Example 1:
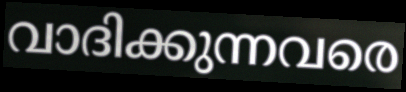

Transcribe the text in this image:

വാദിക്കുന്നവരെ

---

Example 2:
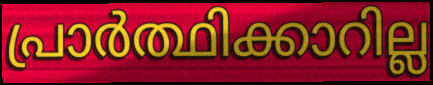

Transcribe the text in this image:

പ്രാർത്ഥിക്കാറില്ല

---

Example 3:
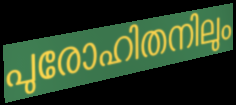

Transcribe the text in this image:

പുരോഹിതനിലും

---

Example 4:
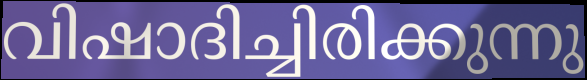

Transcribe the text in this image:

വിഷാദിച്ചിരിക്കുന്നു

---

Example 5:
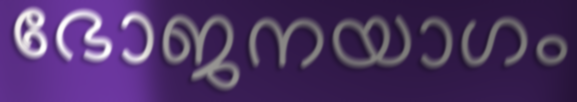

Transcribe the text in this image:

ഭോജനയാഗം